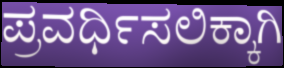
ಪ್ರವರ್ಧಿಸಲಿಕ್ಕಾಗಿ